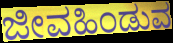
ಜೀವಹಿಂಡುವ